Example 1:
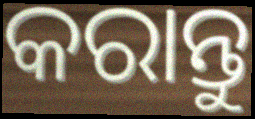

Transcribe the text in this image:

କରାନ୍ତୁ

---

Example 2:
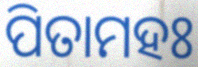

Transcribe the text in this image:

ପିତାମହଃ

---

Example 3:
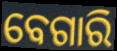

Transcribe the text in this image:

ବେଗାରି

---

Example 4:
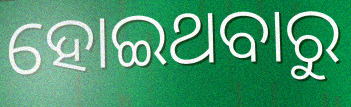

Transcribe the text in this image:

ହୋଇଥବାରୁ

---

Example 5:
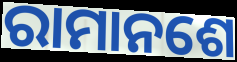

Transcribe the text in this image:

ରାମାନଶେ